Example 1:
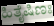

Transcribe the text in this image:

ಹಿತೈಷಿಣಃ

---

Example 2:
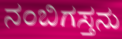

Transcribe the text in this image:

ನಂಬಿಗಸ್ತನು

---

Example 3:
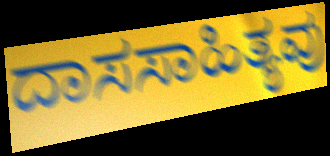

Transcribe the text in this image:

ದಾಸಸಾಹಿತ್ಯವು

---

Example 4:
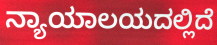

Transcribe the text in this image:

ನ್ಯಾಯಾಲಯದಲ್ಲಿದೆ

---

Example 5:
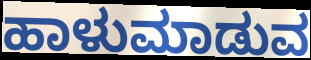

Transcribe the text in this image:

ಹಾಳುಮಾಡುವ